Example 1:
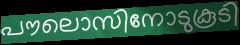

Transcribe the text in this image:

പൗലൊസിനോടുകൂടി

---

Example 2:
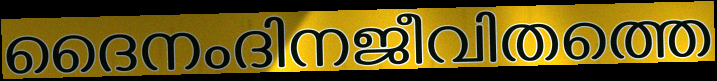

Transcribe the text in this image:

ദൈനംദിനജീവിതത്തെ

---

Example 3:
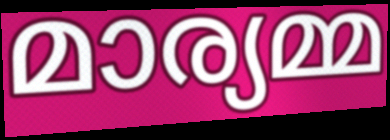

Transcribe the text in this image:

മാര്യമ്മ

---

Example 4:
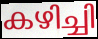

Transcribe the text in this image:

കഴിച്ചി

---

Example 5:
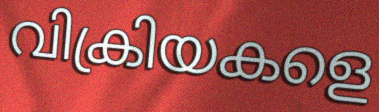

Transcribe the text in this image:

വിക്രിയകളെ